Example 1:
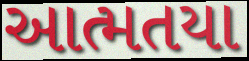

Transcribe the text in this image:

આત્મતયા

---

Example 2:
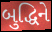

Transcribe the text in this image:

બુદ્ધિને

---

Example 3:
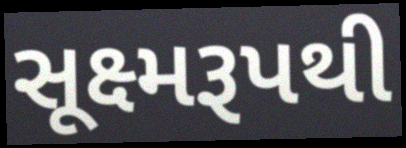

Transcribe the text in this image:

સૂક્ષ્મરૂપથી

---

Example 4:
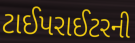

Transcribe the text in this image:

ટાઈપરાઈટરની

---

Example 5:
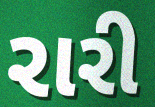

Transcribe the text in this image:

રારી